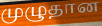
முழுதான